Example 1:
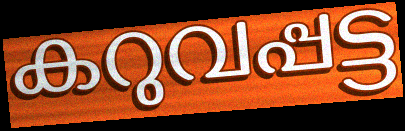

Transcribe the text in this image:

കറുവപ്പട്ട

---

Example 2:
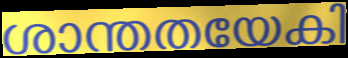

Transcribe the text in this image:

ശാന്തതയേകി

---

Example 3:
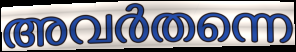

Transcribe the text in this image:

അവർതന്നെ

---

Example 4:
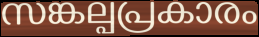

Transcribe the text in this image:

സങ്കല്പപ്രകാരം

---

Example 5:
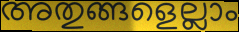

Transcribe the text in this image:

അതുങ്ങളെല്ലാം